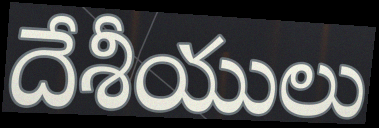
దేశీయులు